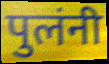
पुलंनी